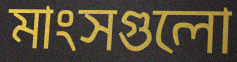
মাংসগুলো